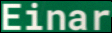
Einar